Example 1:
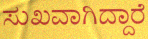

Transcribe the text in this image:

ಸುಖವಾಗಿದ್ದಾರೆ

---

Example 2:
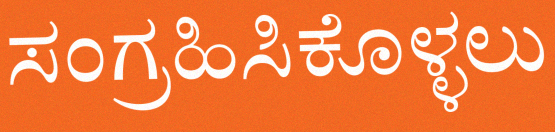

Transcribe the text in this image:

ಸಂಗ್ರಹಿಸಿಕೊಳ್ಳಲು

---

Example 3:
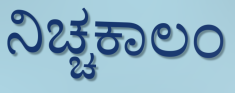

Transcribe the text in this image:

ನಿಚ್ಚಕಾಲಂ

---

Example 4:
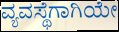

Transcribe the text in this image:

ವ್ಯವಸ್ಥೆಗಾಗಿಯೇ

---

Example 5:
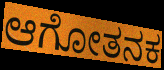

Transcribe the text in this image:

ಆಗೋತನಕ